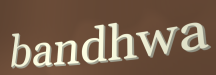
bandhwa